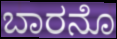
ಬಾರನೊ